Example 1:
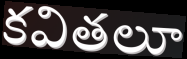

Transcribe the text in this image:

కవితలూ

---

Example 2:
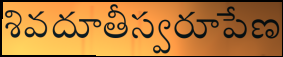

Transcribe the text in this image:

శివదూతీస్వరూపేణ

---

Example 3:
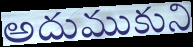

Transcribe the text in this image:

అదుముకుని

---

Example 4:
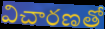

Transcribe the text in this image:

విచారణతో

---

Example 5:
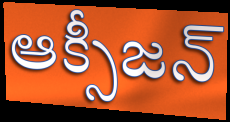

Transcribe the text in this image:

ఆక్సీజన్